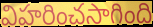
విహరించసాగింది